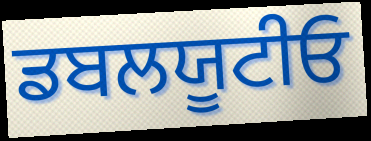
ਡਬਲਯੂਟੀਓ